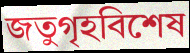
জতুগৃহবিশেষ